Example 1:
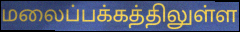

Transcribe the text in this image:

மலைப்பக்கத்திலுள்ள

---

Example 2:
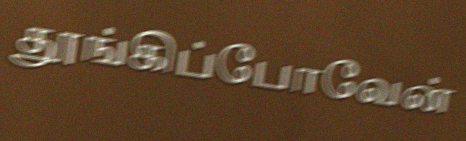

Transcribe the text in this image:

தூங்கிப்போவேன்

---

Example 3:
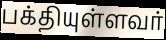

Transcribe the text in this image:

பக்தியுள்ளவர்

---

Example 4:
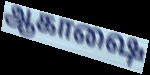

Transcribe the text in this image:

ஆகாஷை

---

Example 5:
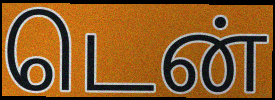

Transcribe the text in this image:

டென்